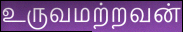
உருவமற்றவன்